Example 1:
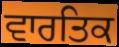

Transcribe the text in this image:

ਵਾਰਤਿਕ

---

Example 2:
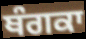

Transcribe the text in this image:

ਥੰਗਕਾ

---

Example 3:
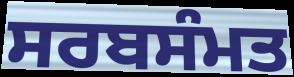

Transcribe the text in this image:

ਸਰਬਸੰਮਤ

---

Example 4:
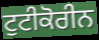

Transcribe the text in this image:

ਟੁਟੀਕੋਰੀਨ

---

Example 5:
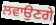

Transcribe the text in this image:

ਲਵਾਉਣਗੇ